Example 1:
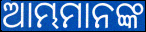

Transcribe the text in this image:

ଆମ୍ଭମାନଙ୍କ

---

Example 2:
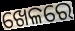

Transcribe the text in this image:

ଖେଳରେ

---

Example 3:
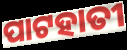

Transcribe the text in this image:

ପାଟହାତୀ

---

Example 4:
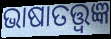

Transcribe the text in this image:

ଭାଷାତତ୍ତ୍ୱଜ୍ଞ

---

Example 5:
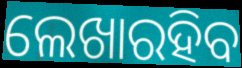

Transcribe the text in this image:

ଲେଖାରହିବ